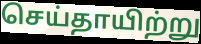
செய்தாயிற்று